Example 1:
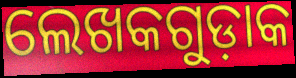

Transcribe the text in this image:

ଲେଖକଗୁଡ଼ାକ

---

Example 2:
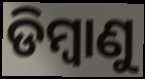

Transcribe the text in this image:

ଡିମ୍ବାଣୁ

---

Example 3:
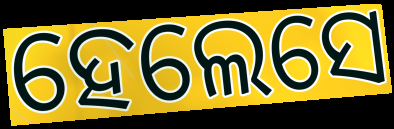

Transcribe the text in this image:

ହେଲେସେ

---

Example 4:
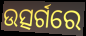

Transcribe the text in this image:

ଉତ୍ସର୍ଗରେ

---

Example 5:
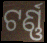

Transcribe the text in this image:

ଟର୍ଣ୍ଣ